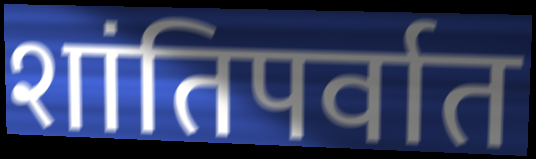
शांतिपर्वात